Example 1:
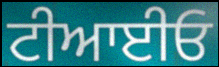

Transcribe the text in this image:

ਟੀਆਈਓ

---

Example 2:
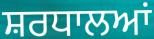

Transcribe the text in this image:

ਸ਼ਰਧਾਲਆਂ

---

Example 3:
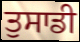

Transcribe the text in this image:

ਤੁਸਾਡੀ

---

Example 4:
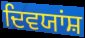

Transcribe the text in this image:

ਦਿਵਯਾਂਸ਼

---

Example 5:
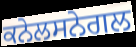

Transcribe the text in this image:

ਕਨੇਲਸਨੇਗਲ